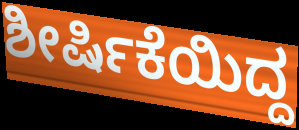
ಶೀರ್ಷಿಕೆಯಿದ್ದ